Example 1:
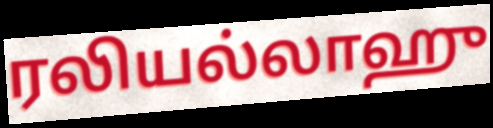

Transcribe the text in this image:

ரலியல்லாஹு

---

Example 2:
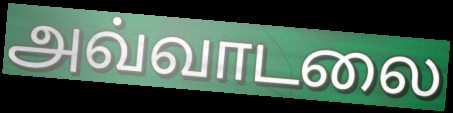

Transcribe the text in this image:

அவ்வாடலை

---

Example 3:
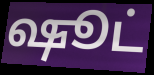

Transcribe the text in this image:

ஷூட்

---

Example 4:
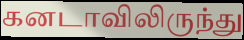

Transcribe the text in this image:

கனடாவிலிருந்து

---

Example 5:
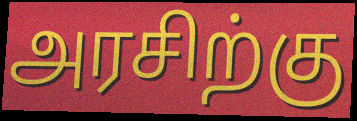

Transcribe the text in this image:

அரசிற்கு